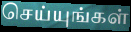
செய்யுங்கள்